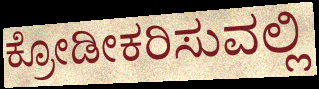
ಕ್ರೋಡೀಕರಿಸುವಲ್ಲಿ